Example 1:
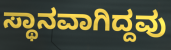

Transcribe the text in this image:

ಸ್ಥಾನವಾಗಿದ್ದವು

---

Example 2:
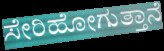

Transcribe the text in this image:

ಸೇರಿಹೋಗುತ್ತಾನೆ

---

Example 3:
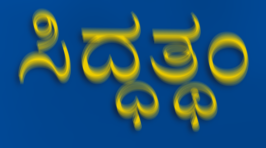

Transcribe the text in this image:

ಸಿದ್ಧತ್ಥಂ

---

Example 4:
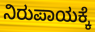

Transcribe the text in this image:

ನಿರುಪಾಯಕ್ಕೆ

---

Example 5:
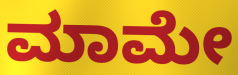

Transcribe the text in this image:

ಮಾಮೇ